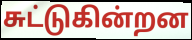
சுட்டுகின்றன